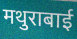
मथुराबाई